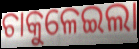
ଚାକୁଳେଇଲା